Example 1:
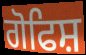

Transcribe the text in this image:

ਗੋਫਿਸ਼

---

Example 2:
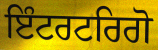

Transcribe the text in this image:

ਇੰਟਰਟਰਿਗੋ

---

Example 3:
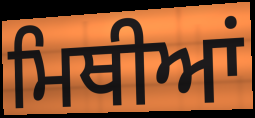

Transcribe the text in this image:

ਮਿਥੀਆਂ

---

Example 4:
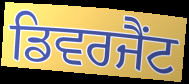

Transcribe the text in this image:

ਡਿਵਰਜੈਂਟ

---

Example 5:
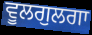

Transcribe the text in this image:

ਵੂਲਗੁਲਗਾ